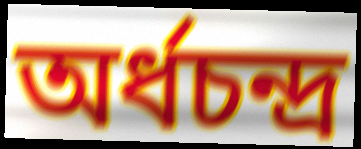
অর্ধচন্দ্র